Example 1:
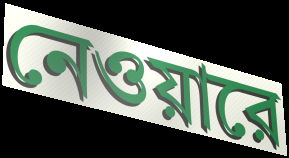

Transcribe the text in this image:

নেওয়ারে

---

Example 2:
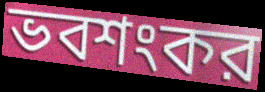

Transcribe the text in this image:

ভবশংকর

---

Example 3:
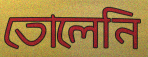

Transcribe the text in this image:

তোলেনি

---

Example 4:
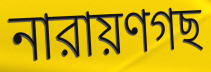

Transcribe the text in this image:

নারায়ণগছ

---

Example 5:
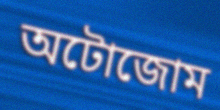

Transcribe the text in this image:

অটোজোম